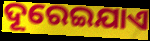
ଦୂରେଇଯାଏ